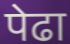
पेढा